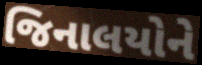
જિનાલયોને